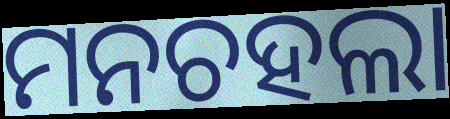
ମନଚହଲା